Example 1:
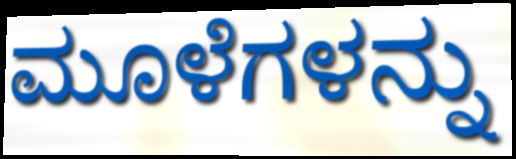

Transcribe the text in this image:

ಮೂಳೆಗಳನ್ನು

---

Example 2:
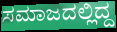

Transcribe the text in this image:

ಸಮಾಜದಲ್ಲಿದ್ದ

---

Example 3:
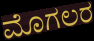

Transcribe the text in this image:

ಮೊಗಲರ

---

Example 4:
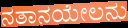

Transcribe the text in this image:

ನತಾನಯೇಲನು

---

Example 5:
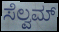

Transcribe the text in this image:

ಸೆಲ್ವಮ್